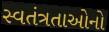
સ્વતંત્રતાઓનો